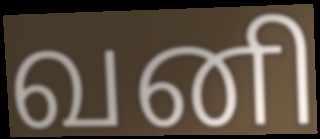
வனி